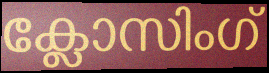
ക്ലോസിംഗ്